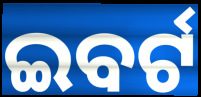
ଇବର୍ଟ